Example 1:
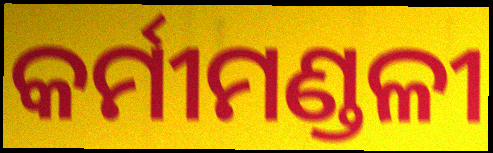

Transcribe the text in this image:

କର୍ମୀମଣ୍ଡଳୀ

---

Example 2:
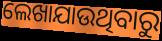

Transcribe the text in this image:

ଲେଖାଯାଉଥିବାରୁ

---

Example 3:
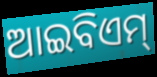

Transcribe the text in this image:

ଆଇବିଏମ୍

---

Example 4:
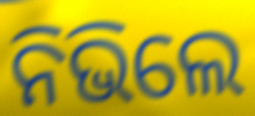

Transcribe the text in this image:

ନିଭିଲେ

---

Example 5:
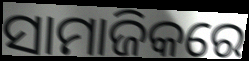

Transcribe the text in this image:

ସାମାଜିକରେ